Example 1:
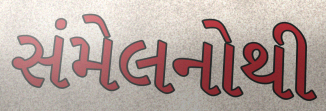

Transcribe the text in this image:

સંમેલનોથી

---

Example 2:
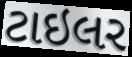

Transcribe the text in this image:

ટાઇલર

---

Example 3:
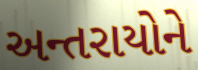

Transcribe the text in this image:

અન્તરાયોને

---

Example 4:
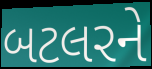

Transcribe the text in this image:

બટલરને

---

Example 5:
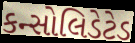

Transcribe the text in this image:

કન્સોલિડેટેડ